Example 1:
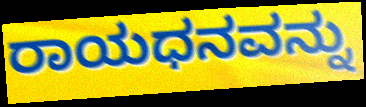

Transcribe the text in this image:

ರಾಯಧನವನ್ನು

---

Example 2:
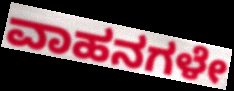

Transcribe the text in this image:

ವಾಹನಗಳೇ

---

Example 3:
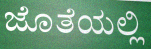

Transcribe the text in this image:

ಜೊತೆಯಲ್ಲಿ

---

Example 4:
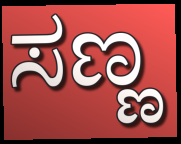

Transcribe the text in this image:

ಸಣ್ಣ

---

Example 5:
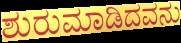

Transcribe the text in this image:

ಶುರುಮಾಡಿದವನು